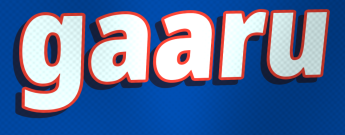
gaaru